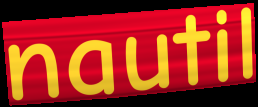
nautil